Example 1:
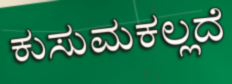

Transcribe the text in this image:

ಕುಸುಮಕಲ್ಲದೆ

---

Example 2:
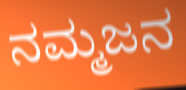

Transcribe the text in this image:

ನಮ್ಮಜನ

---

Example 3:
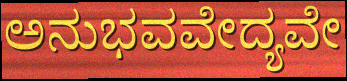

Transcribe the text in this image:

ಅನುಭವವೇದ್ಯವೇ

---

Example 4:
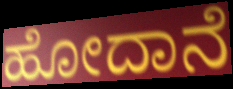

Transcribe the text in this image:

ಹೋದಾನೆ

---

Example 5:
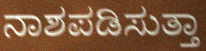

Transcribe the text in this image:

ನಾಶಪಡಿಸುತ್ತಾ